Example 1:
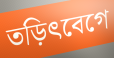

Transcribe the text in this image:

তড়িৎবেগে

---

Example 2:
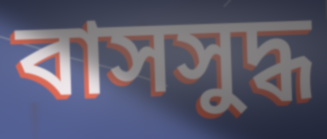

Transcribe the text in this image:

বাসসুদ্ধ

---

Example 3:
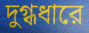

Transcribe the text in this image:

দুগ্ধধারে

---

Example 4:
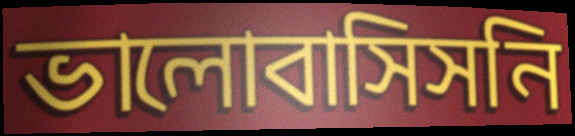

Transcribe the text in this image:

ভালোবাসিসনি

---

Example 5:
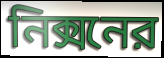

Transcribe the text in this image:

নিক্সনের